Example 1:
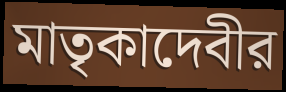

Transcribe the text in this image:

মাতৃকাদেবীর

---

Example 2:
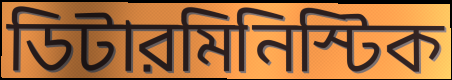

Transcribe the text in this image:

ডিটারমিনিস্টিক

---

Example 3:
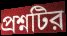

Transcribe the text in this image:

প্রশ্নটির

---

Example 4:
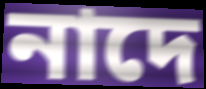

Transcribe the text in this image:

নাদে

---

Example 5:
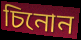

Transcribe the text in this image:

চিনোন